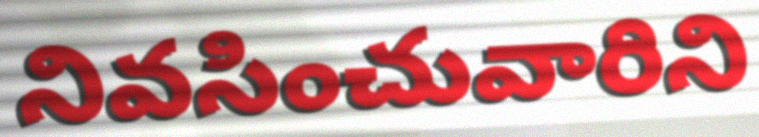
నివసించువారిని